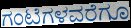
ಗಂಟೆಗಳವರೆಗೂ